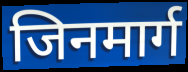
जिनमार्ग